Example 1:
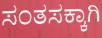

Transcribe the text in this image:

ಸಂತಸಕ್ಕಾಗಿ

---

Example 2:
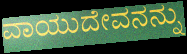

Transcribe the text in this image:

ವಾಯುದೇವನನ್ನು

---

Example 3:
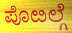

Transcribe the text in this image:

ಪೊೞಲ್ಗೆ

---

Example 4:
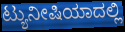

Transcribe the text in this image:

ಟ್ಯುನೀಷಿಯಾದಲ್ಲಿ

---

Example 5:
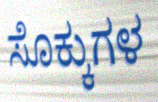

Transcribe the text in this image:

ಸೊಕ್ಕುಗಳ